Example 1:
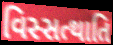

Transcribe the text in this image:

વિસ્સત્થાતિ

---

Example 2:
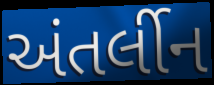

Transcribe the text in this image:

અંતર્લીન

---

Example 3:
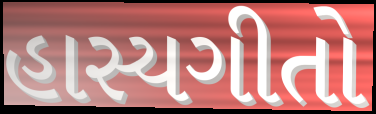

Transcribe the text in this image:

હાસ્યગીતો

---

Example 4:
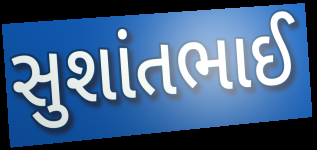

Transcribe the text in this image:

સુશાંતભાઈ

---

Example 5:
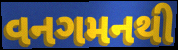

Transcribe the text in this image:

વનગમનથી